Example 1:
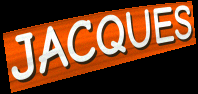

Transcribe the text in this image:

JACQUES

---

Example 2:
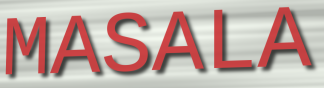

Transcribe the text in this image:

MASALA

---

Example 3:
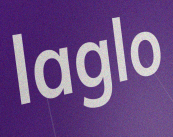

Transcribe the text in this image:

laglo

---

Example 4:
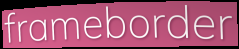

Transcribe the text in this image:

frameborder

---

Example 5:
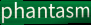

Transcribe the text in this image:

phantasm